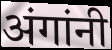
अंगांनी